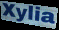
Xylia